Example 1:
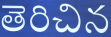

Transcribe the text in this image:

తెరిచిన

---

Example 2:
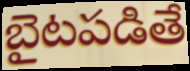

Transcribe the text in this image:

బైటపడితే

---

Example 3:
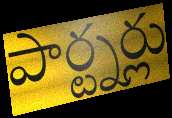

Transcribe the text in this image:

పార్ట్నర్లు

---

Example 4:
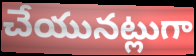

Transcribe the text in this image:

చేయునట్లుగా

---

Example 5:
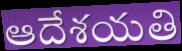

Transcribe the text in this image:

ఆదేశయతి